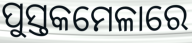
ପୁସ୍ତକମେଳାରେ